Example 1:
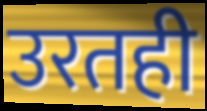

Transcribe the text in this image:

उरतही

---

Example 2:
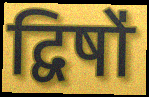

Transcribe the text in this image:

द्विषो॑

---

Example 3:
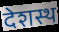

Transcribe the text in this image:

देशस्थ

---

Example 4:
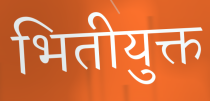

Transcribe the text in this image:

भितीयुक्त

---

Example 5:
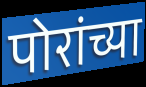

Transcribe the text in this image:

पोरांच्या